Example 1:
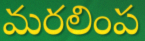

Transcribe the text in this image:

మరలింప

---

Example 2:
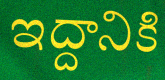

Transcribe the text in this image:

ఇద్దానికి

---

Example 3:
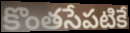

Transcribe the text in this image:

కొంతసేపటికే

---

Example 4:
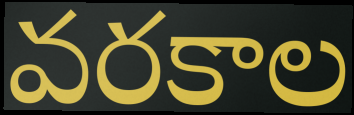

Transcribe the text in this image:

వరకాల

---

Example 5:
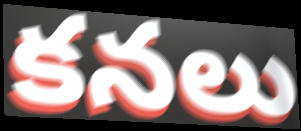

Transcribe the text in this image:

కనలు